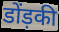
डोंड़की